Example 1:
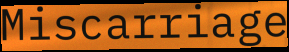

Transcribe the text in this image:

Miscarriage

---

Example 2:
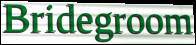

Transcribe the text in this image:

Bridegroom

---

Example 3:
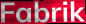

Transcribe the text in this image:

Fabrik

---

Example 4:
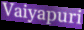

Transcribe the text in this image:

Vaiyapuri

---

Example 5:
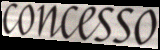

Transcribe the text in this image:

concesso